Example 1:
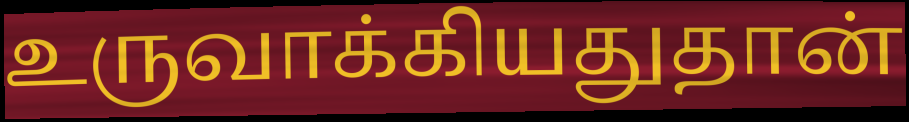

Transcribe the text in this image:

உருவாக்கியதுதான்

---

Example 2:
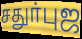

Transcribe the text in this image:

சதுர்புஜ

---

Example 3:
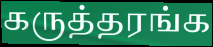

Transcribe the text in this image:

கருத்தரங்க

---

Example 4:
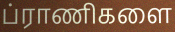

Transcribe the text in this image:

ப்ராணிகளை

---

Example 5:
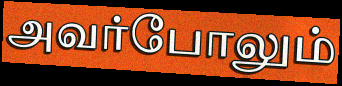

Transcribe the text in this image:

அவர்போலும்